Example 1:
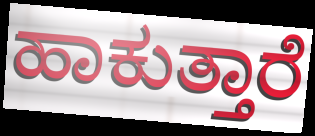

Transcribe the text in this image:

ಹಾಕುತ್ತಾರೆ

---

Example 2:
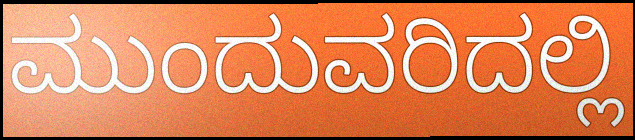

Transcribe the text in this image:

ಮುಂದುವರಿದಲ್ಲಿ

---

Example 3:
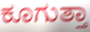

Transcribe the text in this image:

ಕೂಗುತ್ತಾ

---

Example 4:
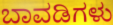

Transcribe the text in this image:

ಬಾವಡಿಗಳು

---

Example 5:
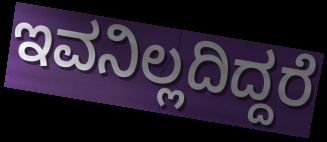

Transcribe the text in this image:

ಇವನಿಲ್ಲದಿದ್ದರೆ